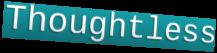
Thoughtless